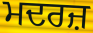
ਮਦਰਜ਼